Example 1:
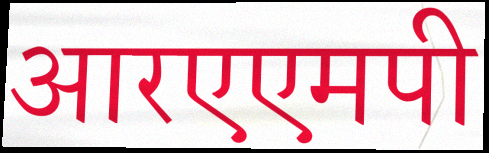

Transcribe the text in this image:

आरएएमपी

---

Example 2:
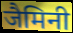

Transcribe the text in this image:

जैमिनी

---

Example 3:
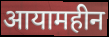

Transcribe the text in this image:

आयामहीन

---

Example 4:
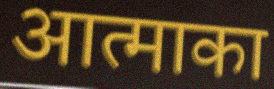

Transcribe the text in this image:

आत्माका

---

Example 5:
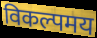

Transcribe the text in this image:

विकल्पमय